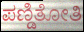
ಪಣ್ಡಿತೋತಿ